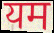
यम